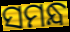
ସମନ୍ଧ